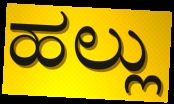
ಹಲ್ಲು